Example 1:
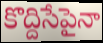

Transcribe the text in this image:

కొద్దిసేపైనా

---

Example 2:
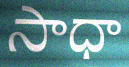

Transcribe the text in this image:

సాధా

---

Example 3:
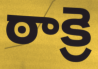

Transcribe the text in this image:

ఠాక్రె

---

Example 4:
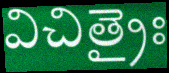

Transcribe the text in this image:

విచిత్రైః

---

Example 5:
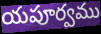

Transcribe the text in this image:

యపూర్వము